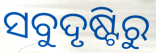
ସବୁଦୃଷ୍ଟିରୁ